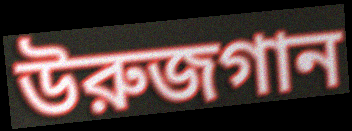
উরুজগান